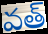
వత్